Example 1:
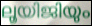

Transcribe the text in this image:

ലൂയിജിയും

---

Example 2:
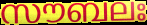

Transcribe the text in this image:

സൗബലഃ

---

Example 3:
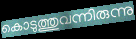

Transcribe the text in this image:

കൊടുത്തുവന്നിരുന്നു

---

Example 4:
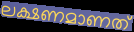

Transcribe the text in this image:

ലക്ഷണമാണത്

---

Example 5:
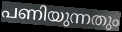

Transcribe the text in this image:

പണിയുന്നതും